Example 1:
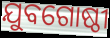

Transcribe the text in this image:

ଯୁବଗୋଷ୍ଠୀ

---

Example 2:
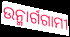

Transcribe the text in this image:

ଉନ୍ମାର୍ଗଗାମୀ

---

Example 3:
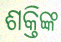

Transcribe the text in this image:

ଶକ୍ତିଙ୍କ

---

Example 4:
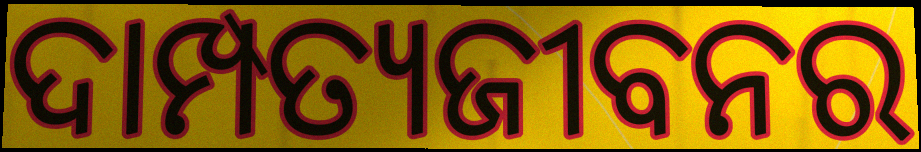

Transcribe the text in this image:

ଦାମ୍ପତ୍ୟଜୀବନର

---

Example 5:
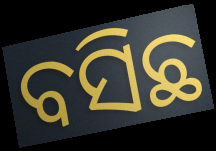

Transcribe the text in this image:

ବସିଛ